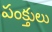
పంక్తులు